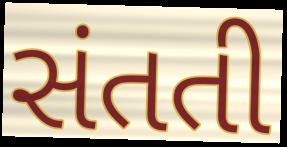
સંતતી